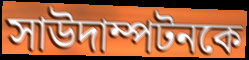
সাউদাম্পটনকে